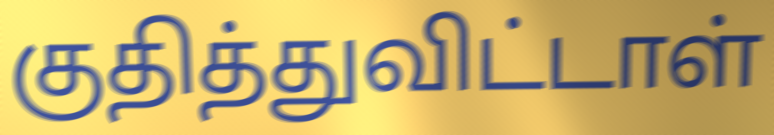
குதித்துவிட்டாள்